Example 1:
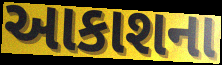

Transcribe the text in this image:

આકાશના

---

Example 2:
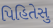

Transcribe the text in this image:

પિહિતેસુ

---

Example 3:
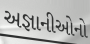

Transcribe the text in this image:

અજ્ઞાનીઓનો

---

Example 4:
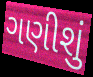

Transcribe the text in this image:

ગણીશું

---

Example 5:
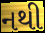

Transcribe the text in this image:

નથી